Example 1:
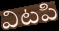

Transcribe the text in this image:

విటపి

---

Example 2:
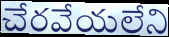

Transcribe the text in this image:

చేరవేయలేని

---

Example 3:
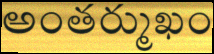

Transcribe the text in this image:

అంతర్ముఖం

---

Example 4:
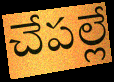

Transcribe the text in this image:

చేపల్లే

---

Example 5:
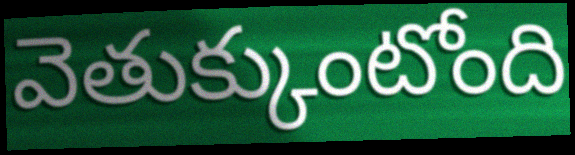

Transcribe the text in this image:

వెతుక్కుంటోంది